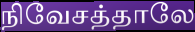
நிவேசத்தாலே